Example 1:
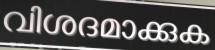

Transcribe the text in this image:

വിശദമാക്കുക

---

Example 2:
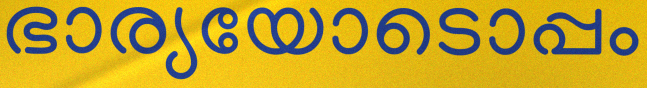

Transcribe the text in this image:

ഭാര്യയോടൊപ്പം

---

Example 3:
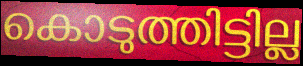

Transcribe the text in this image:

കൊടുത്തിട്ടില്ല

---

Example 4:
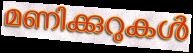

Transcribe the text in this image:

മണിക്കുറുകൾ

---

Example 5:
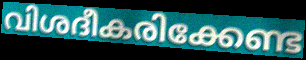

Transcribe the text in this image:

വിശദീകരിക്കേണ്ട